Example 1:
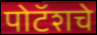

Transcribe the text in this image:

पोटॅशचे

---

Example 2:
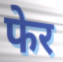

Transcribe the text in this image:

फेर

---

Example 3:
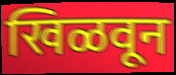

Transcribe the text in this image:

खिळवून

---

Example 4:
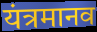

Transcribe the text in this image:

यंत्रमानव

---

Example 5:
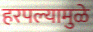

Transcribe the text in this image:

हरपल्यामुळे